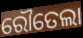
ରୌତେଲା